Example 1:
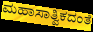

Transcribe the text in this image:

ಮಹಾಸಾತ್ವಿಕದಂತೆ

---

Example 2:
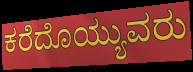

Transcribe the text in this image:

ಕರೆದೊಯ್ಯುವರು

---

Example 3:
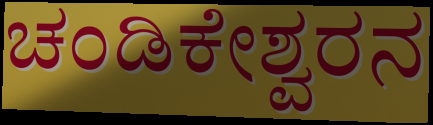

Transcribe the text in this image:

ಚಂಡಿಕೇಶ್ವರನ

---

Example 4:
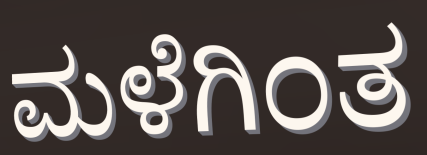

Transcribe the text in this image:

ಮಳೆಗಿಂತ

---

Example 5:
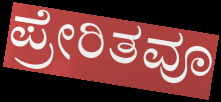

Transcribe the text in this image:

ಪ್ರೇರಿತವೂ